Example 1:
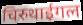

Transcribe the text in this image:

चिरुथाईगल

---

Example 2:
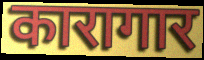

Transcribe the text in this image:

कारागार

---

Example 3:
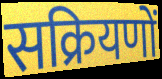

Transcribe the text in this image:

सक्रियणों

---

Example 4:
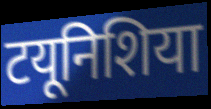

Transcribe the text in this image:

टयूनिशिया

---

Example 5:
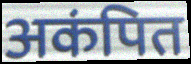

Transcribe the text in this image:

अकंपित